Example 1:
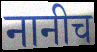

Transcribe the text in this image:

नानीच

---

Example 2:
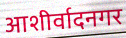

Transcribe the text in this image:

आशीर्वादनगर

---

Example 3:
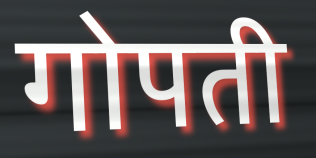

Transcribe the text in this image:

गोपती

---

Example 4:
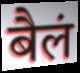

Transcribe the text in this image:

बैलं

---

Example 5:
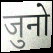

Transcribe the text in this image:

जुनो